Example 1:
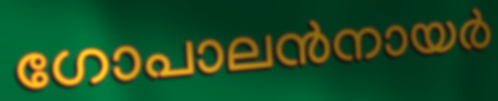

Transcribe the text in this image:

ഗോപാലൻനായർ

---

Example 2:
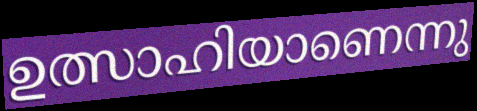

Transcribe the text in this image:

ഉത്സാഹിയാണെന്നു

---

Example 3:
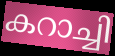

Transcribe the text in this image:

കറാച്ചി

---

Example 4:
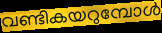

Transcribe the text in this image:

വണ്ടികയറുമ്പോൾ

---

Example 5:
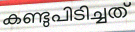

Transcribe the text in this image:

കണ്ടുപിടിച്ചത്